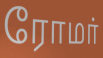
ரோமர்